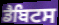
ਡੈਬਿਟਸ